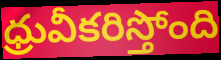
ధ్రువీకరిస్తోంది